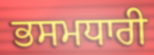
ਭਸਮਧਾਰੀ